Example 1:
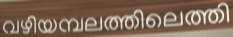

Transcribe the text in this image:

വഴിയമ്പലത്തിലെത്തി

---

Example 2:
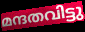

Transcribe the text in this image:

മന്ദതവിട്ടു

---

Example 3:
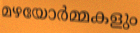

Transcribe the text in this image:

മഴയോർമ്മകളും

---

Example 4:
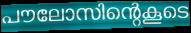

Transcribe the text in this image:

പൗലോസിന്റെകൂടെ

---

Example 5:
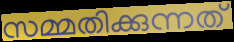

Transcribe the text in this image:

സമ്മതിക്കുന്നത്